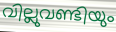
വില്ലുവണ്ടിയും